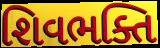
શિવભક્તિ